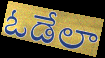
ఓడేలా